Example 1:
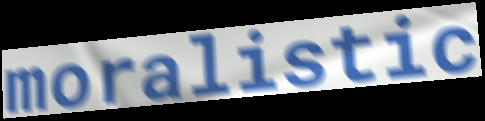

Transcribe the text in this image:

moralistic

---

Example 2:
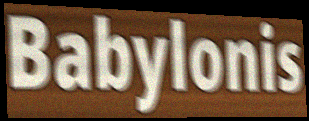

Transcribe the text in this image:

Babylonis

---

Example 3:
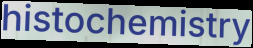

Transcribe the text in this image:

histochemistry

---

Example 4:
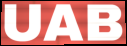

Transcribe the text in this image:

UAB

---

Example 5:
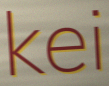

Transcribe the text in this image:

kei